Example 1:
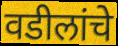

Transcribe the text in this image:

वडीलांचे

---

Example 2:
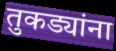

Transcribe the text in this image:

तुकड्यांना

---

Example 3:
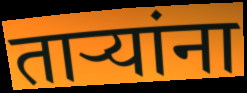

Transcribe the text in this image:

तार्‍यांना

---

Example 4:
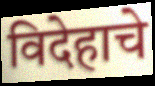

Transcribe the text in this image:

विदेहाचे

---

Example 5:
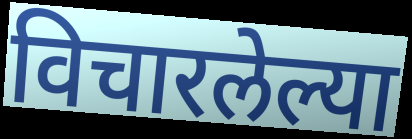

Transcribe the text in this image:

विचारलेल्या